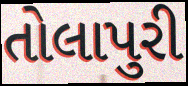
તોલાપુરી